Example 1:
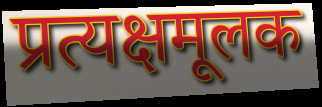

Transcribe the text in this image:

प्रत्यक्षमूलक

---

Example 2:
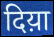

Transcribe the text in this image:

दिय़ा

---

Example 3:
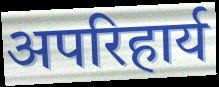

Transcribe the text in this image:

अपरिहार्य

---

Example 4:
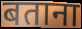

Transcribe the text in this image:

बताना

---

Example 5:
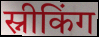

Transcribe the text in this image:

स्नीकिंग